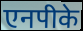
एनपीके